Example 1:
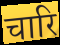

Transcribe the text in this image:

चारि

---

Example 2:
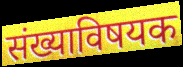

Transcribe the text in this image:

संख्याविषयक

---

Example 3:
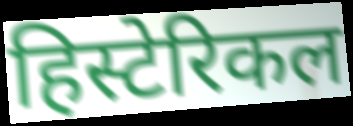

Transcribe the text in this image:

हिस्टेरिकल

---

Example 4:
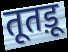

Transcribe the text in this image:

तूतड़ू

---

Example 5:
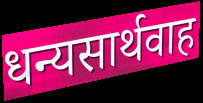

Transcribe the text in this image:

धन्यसार्थवाह